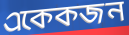
একেকজন